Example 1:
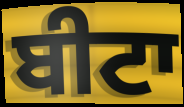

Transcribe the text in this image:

ਬੀਟਾ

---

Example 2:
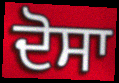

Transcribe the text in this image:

ਦੋਸਾ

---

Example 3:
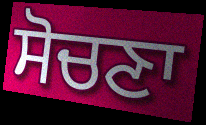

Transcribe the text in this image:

ਸੋਚਣਾ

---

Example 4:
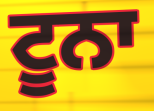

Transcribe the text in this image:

ਟੂਨਾ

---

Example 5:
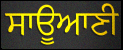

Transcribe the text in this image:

ਸਾਊਆਣੀ